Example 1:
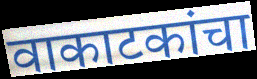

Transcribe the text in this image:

वाकाटकांचा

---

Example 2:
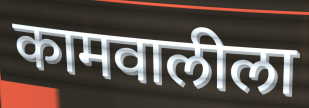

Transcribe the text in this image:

कामवालीला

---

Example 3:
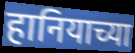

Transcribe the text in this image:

हानियाच्या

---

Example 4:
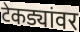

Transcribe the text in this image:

टेकड्यांवर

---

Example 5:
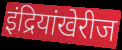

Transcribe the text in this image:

इंद्रियांखेरीज